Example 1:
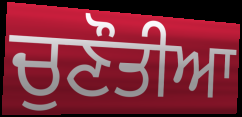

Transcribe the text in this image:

ਚੁਣੌਤੀਆ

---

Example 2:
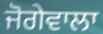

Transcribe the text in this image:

ਜੋਗੇਵਾਲਾ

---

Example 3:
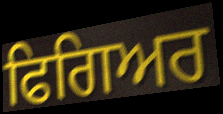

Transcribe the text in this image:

ਫਿਗਿਅਰ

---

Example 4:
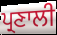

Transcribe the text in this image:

ਪ੍ਰਣਾਲੀ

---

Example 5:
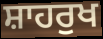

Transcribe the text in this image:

ਸ਼ਾਹਰੁਖ